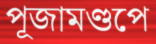
পূজামণ্ডপে